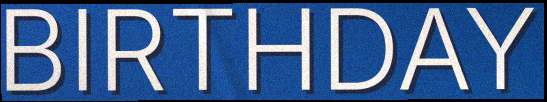
BIRTHDAY